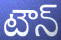
టౌన్